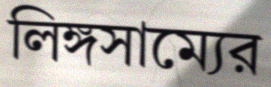
লিঙ্গসাম্যের